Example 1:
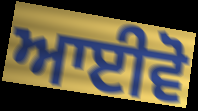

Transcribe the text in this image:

ਆਈਵੋ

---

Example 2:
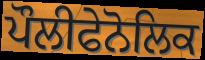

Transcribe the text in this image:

ਪੌਲੀਫੇਨੋਲਿਕ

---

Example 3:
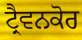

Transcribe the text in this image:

ਟ੍ਰੈਵਨਕੋਰ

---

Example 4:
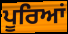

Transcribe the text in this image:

ਪੂਰਿਆਂ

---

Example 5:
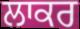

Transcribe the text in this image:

ਲਾਕਰ